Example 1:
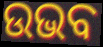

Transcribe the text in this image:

ଉଭବ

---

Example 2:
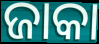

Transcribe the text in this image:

ଜାକା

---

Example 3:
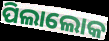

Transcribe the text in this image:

ପିଲାଲୋକ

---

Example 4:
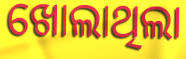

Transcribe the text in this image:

ଖୋଲାଥିଲା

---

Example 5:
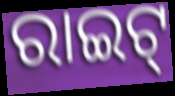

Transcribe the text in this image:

ରାଇଟ୍